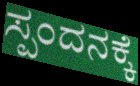
ಸ್ಪಂದನಕ್ಕೆ